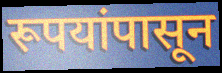
रूपयांपासून